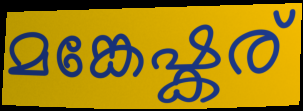
മങ്കേഷ്കര്